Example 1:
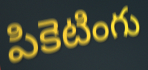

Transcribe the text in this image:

పికెటింగు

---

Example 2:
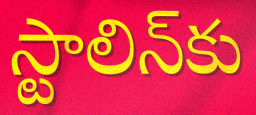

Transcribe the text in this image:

స్టాలిన్‌కు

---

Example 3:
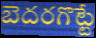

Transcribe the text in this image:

బెదరగొట్టే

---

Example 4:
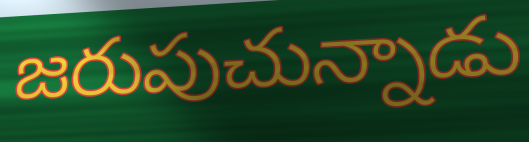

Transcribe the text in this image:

జరుపుచున్నాడు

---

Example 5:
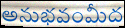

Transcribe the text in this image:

అనుభవంమీద